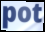
pot